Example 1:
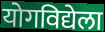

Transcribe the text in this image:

योगविद्येला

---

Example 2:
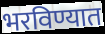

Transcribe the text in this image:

भरविण्यात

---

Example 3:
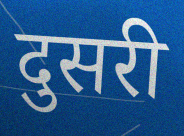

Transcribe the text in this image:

दुसरी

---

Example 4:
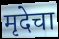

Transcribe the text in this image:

मृदेचा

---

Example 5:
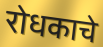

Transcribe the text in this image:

रोधकाचे